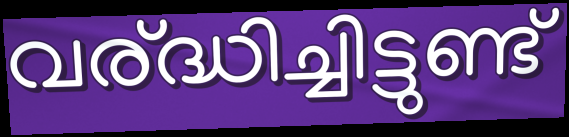
വര്ദ്ധിച്ചിട്ടുണ്ട്